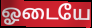
ஓடையே